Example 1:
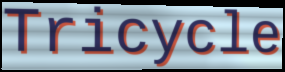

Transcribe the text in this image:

Tricycle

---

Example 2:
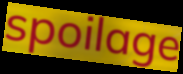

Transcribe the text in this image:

spoilage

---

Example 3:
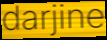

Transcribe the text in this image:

darjine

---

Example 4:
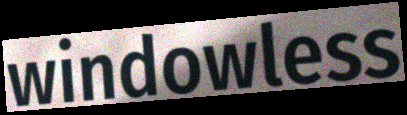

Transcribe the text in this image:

windowless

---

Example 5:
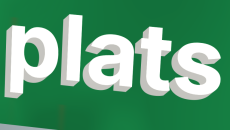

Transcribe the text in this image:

plats